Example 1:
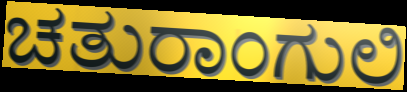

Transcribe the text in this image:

ಚತುರಾಂಗುಲಿ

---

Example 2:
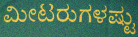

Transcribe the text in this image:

ಮೀಟರುಗಳಷ್ಟು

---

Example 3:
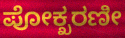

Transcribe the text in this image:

ಪೋಕ್ಖರಣೀ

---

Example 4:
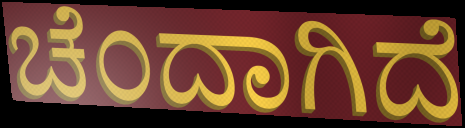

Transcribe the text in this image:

ಚೆಂದಾಗಿದೆ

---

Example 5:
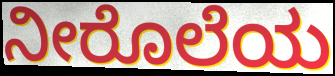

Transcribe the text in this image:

ನೀರೊಲೆಯ